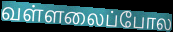
வள்ளலைப்போல